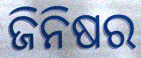
ଜିନିଷର